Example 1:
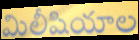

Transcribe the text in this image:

మిలీషియాల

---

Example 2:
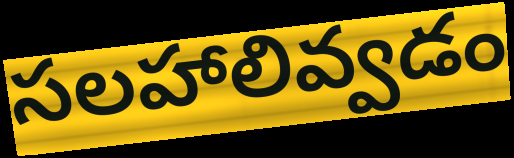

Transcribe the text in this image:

సలహాలివ్వడం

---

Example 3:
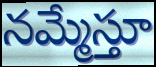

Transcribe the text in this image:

నమ్మేస్తూ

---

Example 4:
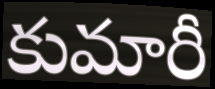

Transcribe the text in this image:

కుమారీ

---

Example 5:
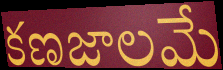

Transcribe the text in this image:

కణజాలమే